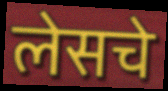
लेसचे